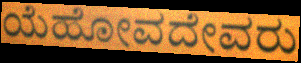
ಯೆಹೋವದೇವರು